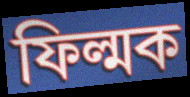
ফিল্মক